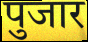
पुजार